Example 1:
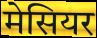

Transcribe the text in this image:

मेसियर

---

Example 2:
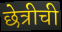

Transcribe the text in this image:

छेत्रीची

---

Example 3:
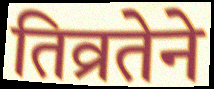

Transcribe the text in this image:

तिव्रतेने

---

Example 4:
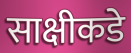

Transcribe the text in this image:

साक्षीकडे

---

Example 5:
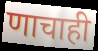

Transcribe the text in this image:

णाचाही